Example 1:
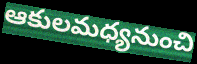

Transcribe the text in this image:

ఆకులమధ్యనుంచి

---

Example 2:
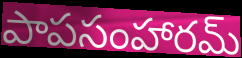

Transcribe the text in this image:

పాపసంహారమ్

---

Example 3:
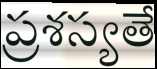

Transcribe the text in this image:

ప్రశస్యతే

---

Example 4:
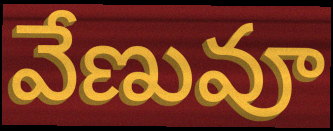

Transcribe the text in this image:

వేణువూ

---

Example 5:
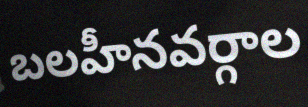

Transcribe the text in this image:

బలహీనవర్గాల